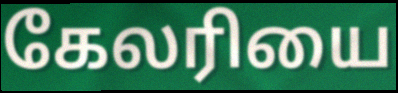
கேலரியை